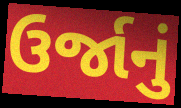
ઉર્જાનું